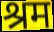
श्रम